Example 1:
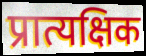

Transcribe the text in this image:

प्रात्यक्षिक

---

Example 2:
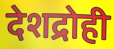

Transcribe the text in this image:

देशद्रोही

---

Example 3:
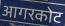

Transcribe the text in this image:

आगरकोट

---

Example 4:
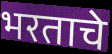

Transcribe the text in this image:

भरताचे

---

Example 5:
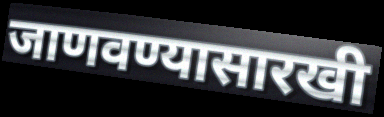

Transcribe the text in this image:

जाणवण्यासारखी